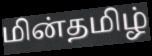
மின்தமிழ்